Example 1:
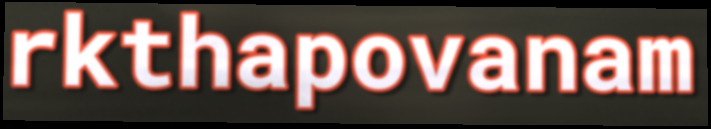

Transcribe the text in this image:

rkthapovanam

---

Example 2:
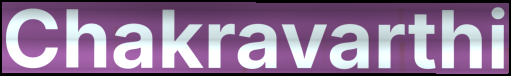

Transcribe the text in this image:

Chakravarthi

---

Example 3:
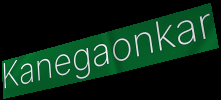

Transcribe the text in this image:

Kanegaonkar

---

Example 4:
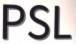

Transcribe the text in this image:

PSL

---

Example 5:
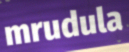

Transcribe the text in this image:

mrudula